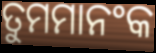
ତୁମମାନଂକ